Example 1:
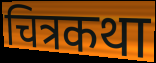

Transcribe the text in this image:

चित्रकथा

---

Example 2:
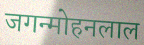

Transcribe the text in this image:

जगन्मोहनलाल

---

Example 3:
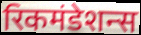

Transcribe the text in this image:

रिकमंडेशन्स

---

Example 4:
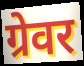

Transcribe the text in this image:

ग्रेवर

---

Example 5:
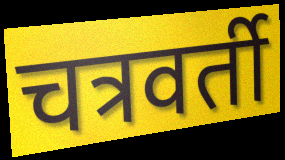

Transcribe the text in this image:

चत्रवर्ती